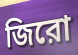
জিরো